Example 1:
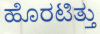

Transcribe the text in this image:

ಹೊರಟಿತ್ತು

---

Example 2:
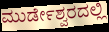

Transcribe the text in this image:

ಮುರ್ಡೇಶ್ವರದಲ್ಲಿ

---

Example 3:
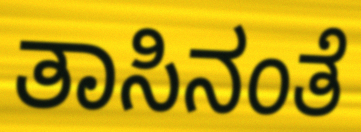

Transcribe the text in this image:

ತಾಸಿನಂತೆ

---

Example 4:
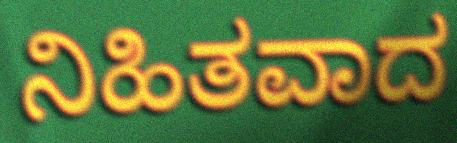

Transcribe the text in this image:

ನಿಹಿತವಾದ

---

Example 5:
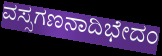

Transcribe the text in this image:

ವಸ್ಸಗಣನಾದಿಭೇದಂ